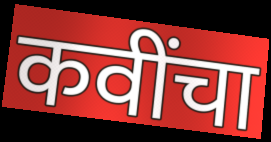
कवींचा